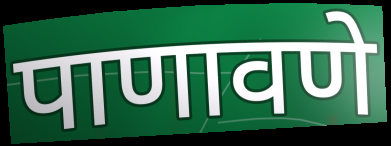
पाणावणे